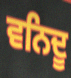
ਵਨਿਦੂ